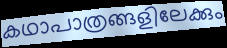
കഥാപാത്രങ്ങളിലേക്കും